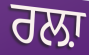
ਰਲ਼ਾ